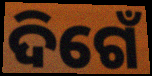
ଦିଗେଁ